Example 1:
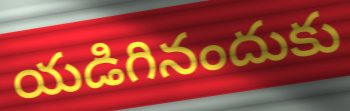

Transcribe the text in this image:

యడిగినందుకు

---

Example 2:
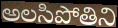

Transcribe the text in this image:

అలసిపోతిని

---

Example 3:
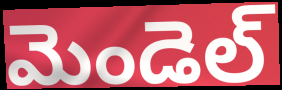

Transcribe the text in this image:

మెండెల్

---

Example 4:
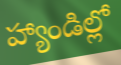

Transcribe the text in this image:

హ్యాండిల్లో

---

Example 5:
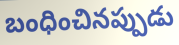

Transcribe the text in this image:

బంధించినప్పుడు